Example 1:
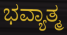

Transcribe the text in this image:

ಭವ್ಯಾತ್ಮ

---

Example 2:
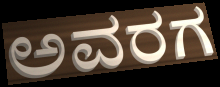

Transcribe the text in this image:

ಅವರಗ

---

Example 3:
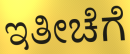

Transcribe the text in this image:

ಇತೀಚೆಗೆ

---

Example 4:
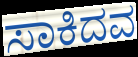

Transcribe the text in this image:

ಸಾಕಿದವ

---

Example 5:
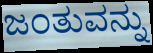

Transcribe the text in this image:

ಜಂತುವನ್ನು